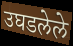
उघडलेले